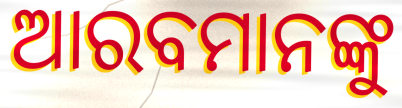
ଆରବମାନଙ୍କୁ